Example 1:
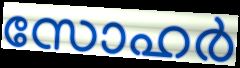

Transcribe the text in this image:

സോഹർ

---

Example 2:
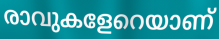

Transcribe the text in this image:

രാവുകളേറെയാണ്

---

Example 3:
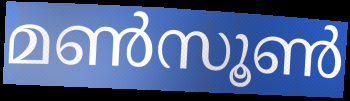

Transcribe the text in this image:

മൺസൂൺ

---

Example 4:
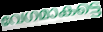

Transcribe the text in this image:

വേഗമാകട്ടെ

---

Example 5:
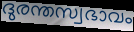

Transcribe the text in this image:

ദുരന്തസ്വഭാവം